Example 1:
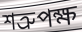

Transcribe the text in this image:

শত্রুপক্ষ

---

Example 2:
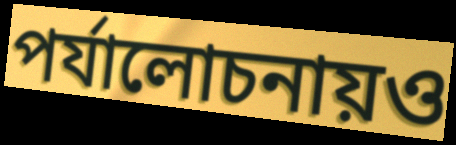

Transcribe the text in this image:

পর্যালোচনায়ও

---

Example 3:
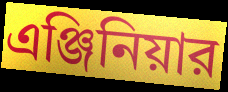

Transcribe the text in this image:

এঞ্জিনিয়ার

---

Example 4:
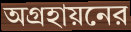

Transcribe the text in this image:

অগ্রহায়নের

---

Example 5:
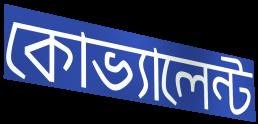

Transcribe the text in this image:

কোভ্যালেন্ট